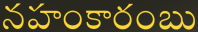
నహంకారంబు